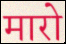
मारो